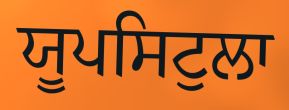
ਯੂਪਸਿਟੁਲਾ